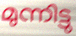
മുന്നിട്ടു